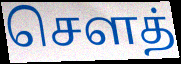
சௌத்